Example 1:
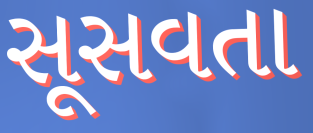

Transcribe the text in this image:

સૂસવતા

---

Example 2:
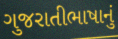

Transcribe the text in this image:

ગુજરાતીભાષાનું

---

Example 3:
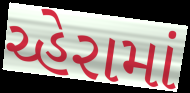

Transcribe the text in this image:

ચ્હેરામાં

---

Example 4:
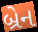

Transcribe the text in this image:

બ્રેન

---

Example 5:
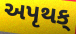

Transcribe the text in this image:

અપૃથક્